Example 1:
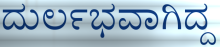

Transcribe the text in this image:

ದುರ್ಲಭವಾಗಿದ್ದ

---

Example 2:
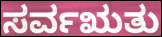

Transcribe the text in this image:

ಸರ್ವಋತು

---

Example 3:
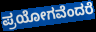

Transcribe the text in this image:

ಪ್ರಯೋಗವೆಂದರೆ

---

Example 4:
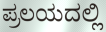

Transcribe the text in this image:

ಪ್ರಲಯದಲ್ಲಿ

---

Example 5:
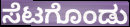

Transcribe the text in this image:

ಸೆಟಗೊಂಡು